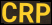
CRP